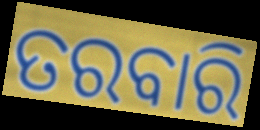
ତରବାରି